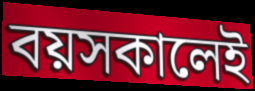
বয়সকালেই